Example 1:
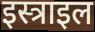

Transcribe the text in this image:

इस्त्राइल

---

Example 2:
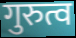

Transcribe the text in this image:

गुरुत्व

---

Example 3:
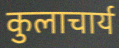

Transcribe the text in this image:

कुलाचार्य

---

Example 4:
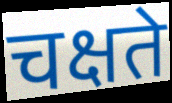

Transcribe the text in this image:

चक्षते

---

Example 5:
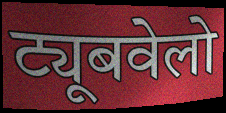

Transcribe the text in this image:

ट्यूबवेलो